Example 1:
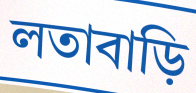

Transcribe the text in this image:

লতাবাড়ি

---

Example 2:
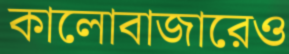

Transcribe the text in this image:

কালোবাজারেও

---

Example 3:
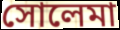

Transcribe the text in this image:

সোলেমা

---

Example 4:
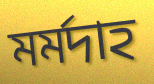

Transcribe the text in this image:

মর্মদাহ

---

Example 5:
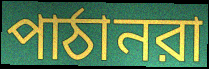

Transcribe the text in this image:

পাঠানরা